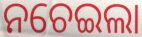
ନଚେଇଲା